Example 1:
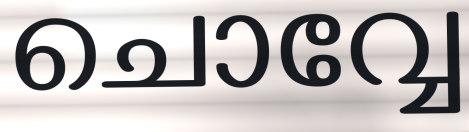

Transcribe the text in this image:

ചൊവ്വേ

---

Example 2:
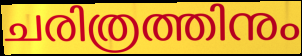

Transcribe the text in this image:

ചരിത്രത്തിനും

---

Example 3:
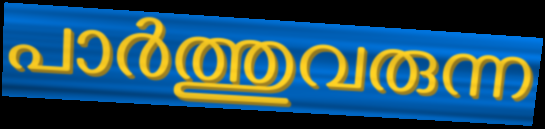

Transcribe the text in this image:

പാർത്തുവരുന്ന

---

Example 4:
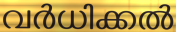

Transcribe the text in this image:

വർധിക്കൽ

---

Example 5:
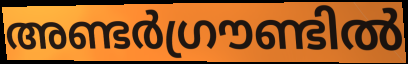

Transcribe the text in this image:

അണ്ടർഗ്രൗണ്ടിൽ